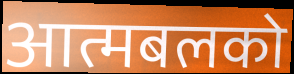
आत्मबलको